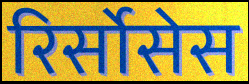
रिर्सोसेस